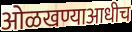
ओळखण्याआधीच